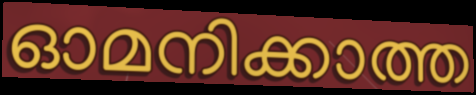
ഓമനിക്കാത്ത